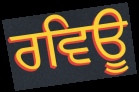
ਰਵਿਊ